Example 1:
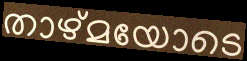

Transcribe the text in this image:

താഴ്മയോടെ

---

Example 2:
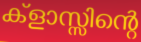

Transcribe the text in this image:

ക്ളാസ്സിന്റെ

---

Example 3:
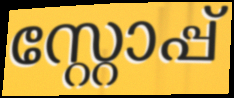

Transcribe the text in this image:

സ്റ്റോപ്പ്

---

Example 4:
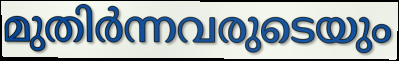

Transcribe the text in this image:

മുതിർന്നവരുടെയും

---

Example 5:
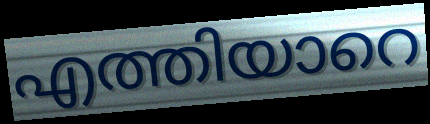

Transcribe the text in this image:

എത്തിയാറെ